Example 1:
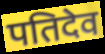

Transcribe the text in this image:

पतिदेव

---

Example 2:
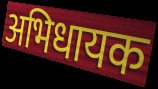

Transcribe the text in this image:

अभिधायक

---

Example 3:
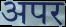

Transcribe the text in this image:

अपर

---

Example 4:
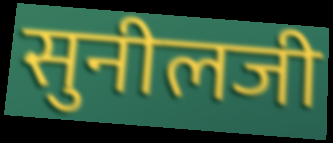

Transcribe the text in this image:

सुनीलजी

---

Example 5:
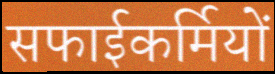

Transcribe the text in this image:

सफाईकर्मियों